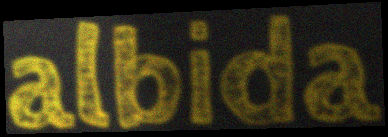
albida